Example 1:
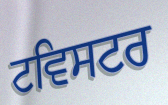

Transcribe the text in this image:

ਟਵਿਸਟਰ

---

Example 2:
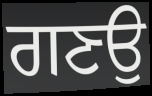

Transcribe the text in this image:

ਗਣਉ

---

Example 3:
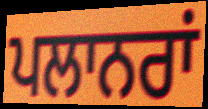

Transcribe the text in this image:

ਪਲਾਨਰਾਂ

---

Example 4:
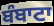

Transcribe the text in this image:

ਬੰਬਾਟਾ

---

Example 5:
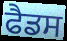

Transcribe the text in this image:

ਫੈਡਸ